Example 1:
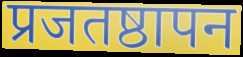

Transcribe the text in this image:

प्रजतष्ठापन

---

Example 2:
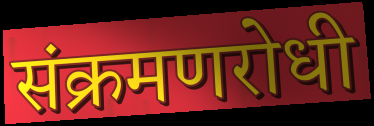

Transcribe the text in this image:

संक्रमणरोधी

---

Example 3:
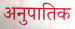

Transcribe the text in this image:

अनुपातिक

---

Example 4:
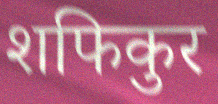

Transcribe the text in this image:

शफिकुर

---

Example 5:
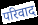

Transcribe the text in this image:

परिवाद